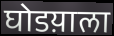
घोडय़ाला